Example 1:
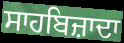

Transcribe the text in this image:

ਸਾਹਬਿਜ਼ਾਦਾ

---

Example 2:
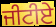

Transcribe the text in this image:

ਜੀਟੀਏ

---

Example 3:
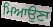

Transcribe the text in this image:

ਮਿਆਉਣਾ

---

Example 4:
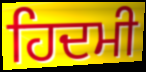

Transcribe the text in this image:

ਹਿਦਮੀ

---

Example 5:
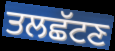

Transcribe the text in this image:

ਤਲਛੱਟਣ